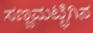
ಸಣ್ಣಮಟ್ಟಿಗಿನ